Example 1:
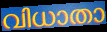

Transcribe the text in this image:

വിധാതാ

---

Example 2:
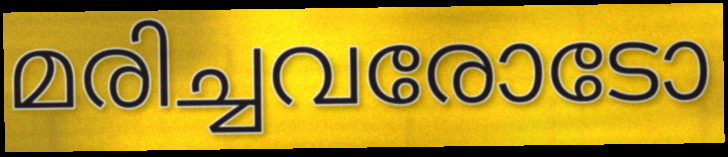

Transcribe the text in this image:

മരിച്ചവരോടോ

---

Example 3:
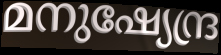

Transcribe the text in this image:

മനുഷ്യേന്ദ്ര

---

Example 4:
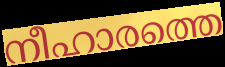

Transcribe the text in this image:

നീഹാരത്തെ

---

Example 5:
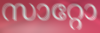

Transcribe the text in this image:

സാറ്റോ